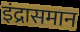
इंद्रासमान